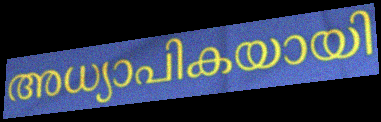
അധ്യാപികയായി